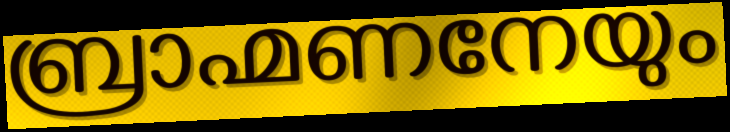
ബ്രാഹ്മണനേയും